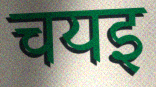
चयइ